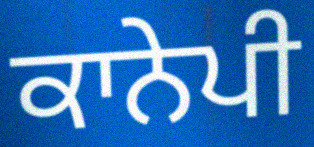
ਕਾਨੇਪੀ